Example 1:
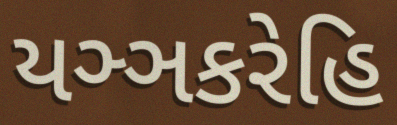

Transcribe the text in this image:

યઞ્ઞકરેહિ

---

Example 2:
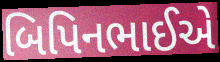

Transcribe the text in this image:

બિપિનભાઈએ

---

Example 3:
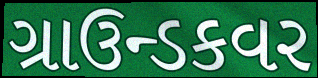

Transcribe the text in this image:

ગ્રાઉન્ડકવર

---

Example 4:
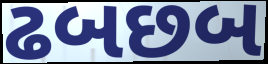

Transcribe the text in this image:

ઢબછબ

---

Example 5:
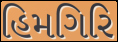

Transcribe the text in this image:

હિમગિરિ